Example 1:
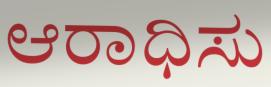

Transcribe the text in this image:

ಆರಾಧಿಸು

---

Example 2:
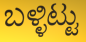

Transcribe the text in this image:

ಬಳ್ಳಿಟ್ಟು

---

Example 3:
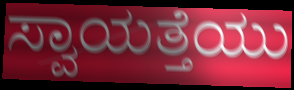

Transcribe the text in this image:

ಸ್ವಾಯತ್ತೆಯು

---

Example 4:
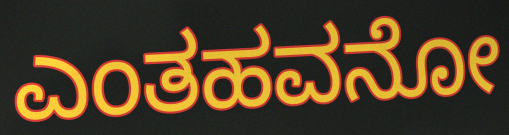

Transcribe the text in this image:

ಎಂತಹವನೋ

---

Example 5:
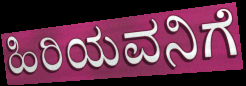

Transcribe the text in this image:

ಹಿರಿಯವನಿಗೆ